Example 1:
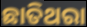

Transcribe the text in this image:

ଛାତିଥରା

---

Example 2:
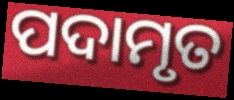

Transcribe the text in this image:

ପଦାମୃତ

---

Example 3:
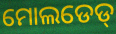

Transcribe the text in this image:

ମୋଲଡେଡ୍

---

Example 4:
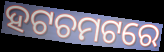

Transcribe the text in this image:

ହଟଚମଟରେ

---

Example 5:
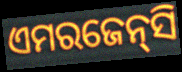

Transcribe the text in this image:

ଏମରଜେନ୍‌ସି